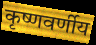
कृष्णवर्णीय